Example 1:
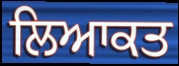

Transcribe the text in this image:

ਲਿਆਕਤ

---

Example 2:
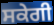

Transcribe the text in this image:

ਸਕੇਗੀ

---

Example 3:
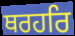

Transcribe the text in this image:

ਥਰਹਰਿ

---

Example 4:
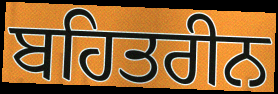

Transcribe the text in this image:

ਬਹਿਤਰੀਨ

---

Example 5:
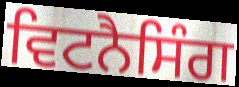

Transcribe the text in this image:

ਵਿਟਨੈਸਿੰਗ